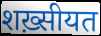
शख़्सीयत